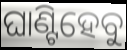
ଘାଣ୍ଟିହେବୁ